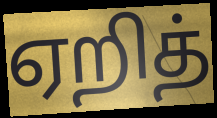
ஏறித்